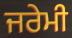
ਜਰੇਮੀ